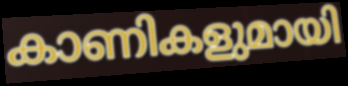
കാണികളുമായി